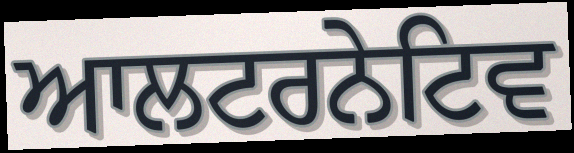
ਆਲਟਰਨੇਟਿਵ